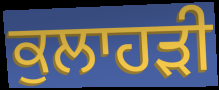
ਕੁਲਾਹੜੀ